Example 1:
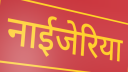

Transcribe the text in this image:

नाईजेरिया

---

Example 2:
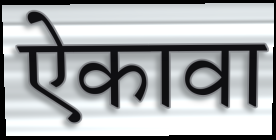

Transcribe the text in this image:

ऐकावा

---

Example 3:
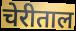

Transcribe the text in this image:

चेरीताल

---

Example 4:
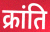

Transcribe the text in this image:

क्रांति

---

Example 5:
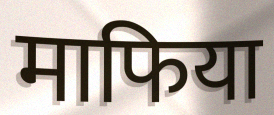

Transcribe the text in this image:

माफिया